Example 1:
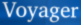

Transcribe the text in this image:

Voyager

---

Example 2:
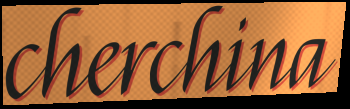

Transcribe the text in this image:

cherchina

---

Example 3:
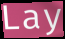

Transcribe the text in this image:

Lay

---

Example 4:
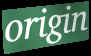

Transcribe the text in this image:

origin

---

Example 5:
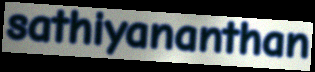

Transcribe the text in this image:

sathiyananthan